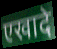
एखादे